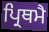
ਪ੍ਰਿਥਮੈ